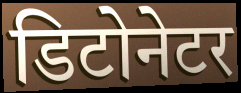
डिटोनेटर